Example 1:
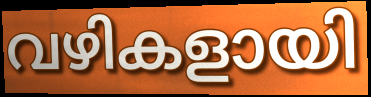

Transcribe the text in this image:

വഴികളായി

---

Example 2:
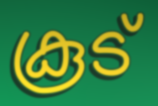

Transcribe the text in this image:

കൂട്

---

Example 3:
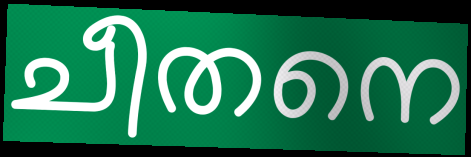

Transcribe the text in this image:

ചീതനെ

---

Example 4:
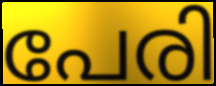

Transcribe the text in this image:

പേരി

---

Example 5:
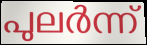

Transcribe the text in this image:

പുലർന്ന്